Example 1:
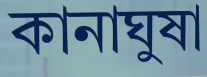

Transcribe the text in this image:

কানাঘুষা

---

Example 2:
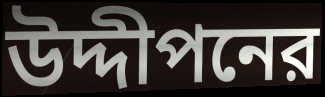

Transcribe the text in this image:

উদ্দীপনের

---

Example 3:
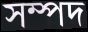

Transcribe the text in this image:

সম্পদ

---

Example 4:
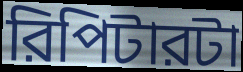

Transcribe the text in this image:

রিপিটারটা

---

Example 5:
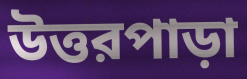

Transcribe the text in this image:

উত্তরপাড়া